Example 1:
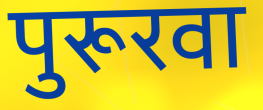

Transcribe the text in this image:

पुरूरवा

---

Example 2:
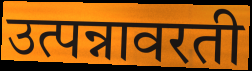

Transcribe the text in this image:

उत्पन्नावरती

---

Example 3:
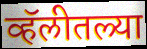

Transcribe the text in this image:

व्हॅलीतल्या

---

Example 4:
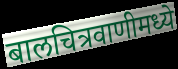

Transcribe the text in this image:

बालचित्रवाणीमध्ये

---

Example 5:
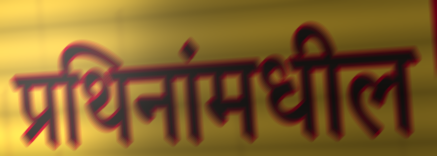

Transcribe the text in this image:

प्रथिनांमधील